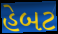
હેબટ